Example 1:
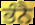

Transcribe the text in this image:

ਭੰਨੈ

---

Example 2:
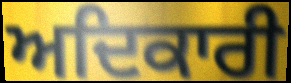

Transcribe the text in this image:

ਅਦਿਕਾਰੀ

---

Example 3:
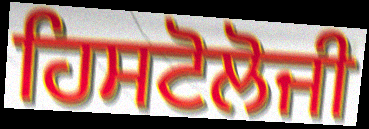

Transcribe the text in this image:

ਹਿਸਟੋਲੋਜੀ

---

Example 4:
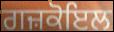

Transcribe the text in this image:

ਗਜ਼ਕੋਇਲ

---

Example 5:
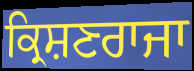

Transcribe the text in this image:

ਕ੍ਰਿਸ਼ਣਰਾਜਾ